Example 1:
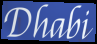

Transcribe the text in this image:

Dhabi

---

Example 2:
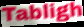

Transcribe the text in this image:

Tabligh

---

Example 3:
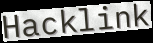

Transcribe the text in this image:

Hacklink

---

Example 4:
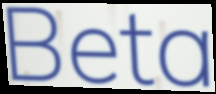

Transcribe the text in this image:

Beta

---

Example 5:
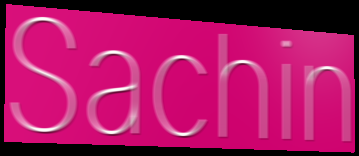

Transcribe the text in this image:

Sachin